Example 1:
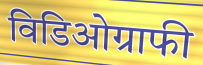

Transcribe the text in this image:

विडिओग्राफी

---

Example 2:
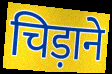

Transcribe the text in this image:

चिड़ाने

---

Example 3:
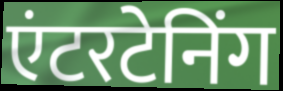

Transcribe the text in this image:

एंटरटेनिंग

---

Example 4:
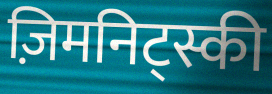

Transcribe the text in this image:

ज़िमनिट्स्की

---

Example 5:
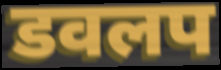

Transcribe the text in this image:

डवलप